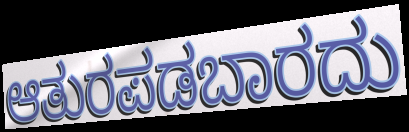
ಆತುರಪಡಬಾರದು